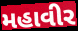
મહાવીર